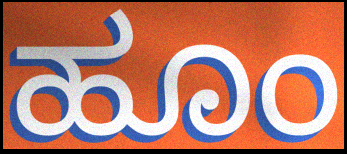
ಹೂಂ